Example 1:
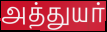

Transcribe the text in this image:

அத்துயர்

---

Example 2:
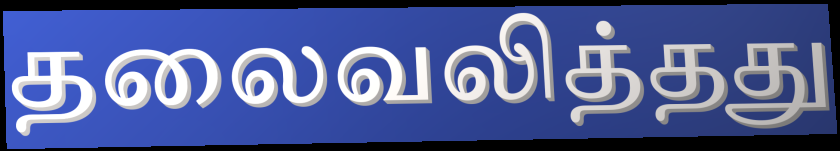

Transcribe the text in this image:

தலைவலித்தது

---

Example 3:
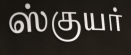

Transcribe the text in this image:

ஸ்குயர்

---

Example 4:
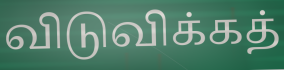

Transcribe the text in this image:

விடுவிக்கத்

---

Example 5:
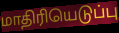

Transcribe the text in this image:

மாதிரியெடுப்பு